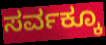
ಸರ್ವಕ್ಕೂ